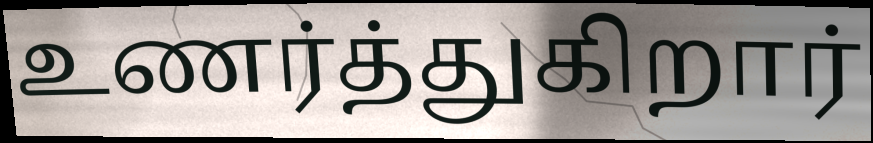
உணர்த்துகிறார்